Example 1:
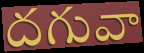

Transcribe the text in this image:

దగువా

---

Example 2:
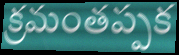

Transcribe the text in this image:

క్రమంతప్పక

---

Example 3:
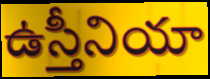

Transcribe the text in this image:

ఉస్తీనియా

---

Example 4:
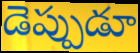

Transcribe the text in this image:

డెప్పుడూ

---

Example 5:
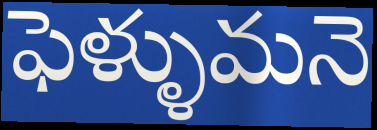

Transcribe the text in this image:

ఫెళ్ళుమనె